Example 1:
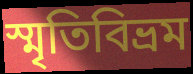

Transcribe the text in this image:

স্মৃতিবিভ্রম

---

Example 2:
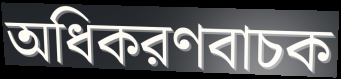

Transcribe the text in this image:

অধিকরণবাচক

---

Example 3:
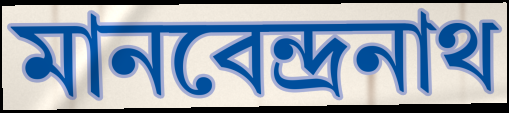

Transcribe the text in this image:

মানবেন্দ্রনাথ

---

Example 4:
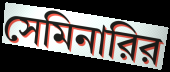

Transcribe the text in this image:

সেমিনারির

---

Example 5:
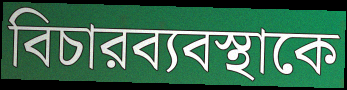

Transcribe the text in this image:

বিচারব্যবস্থাকে